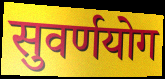
सुवर्णयोग